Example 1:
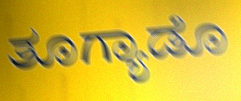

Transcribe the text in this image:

ತೂಗ್ಯಾಡೊ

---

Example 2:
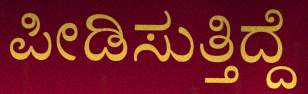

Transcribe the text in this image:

ಪೀಡಿಸುತ್ತಿದ್ದೆ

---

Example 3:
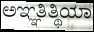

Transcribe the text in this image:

ಅಞ್ಞತಿತ್ಥಿಯಾ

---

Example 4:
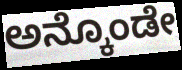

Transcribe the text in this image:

ಅನ್ಕೊಂಡೇ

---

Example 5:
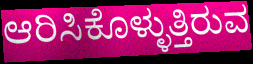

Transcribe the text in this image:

ಆರಿಸಿಕೊಳ್ಳುತ್ತಿರುವ